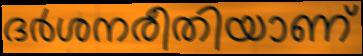
ദർശനരീതിയാണ്